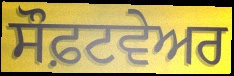
ਸੌਫ਼ਟਵੇਅਰ